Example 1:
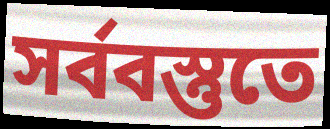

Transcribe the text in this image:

সর্ববস্তুতে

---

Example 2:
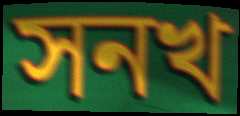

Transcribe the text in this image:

সনখ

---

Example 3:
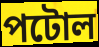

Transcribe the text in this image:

পটোল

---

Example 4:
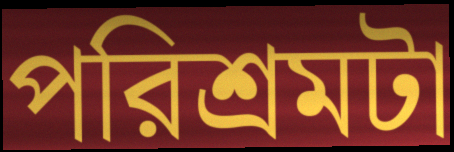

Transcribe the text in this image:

পরিশ্রমটা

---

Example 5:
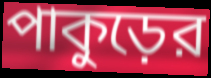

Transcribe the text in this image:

পাকুড়ের